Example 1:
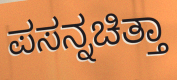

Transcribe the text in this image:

ಪಸನ್ನಚಿತ್ತಾ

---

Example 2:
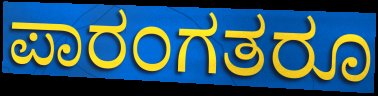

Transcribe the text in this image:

ಪಾರಂಗತರೂ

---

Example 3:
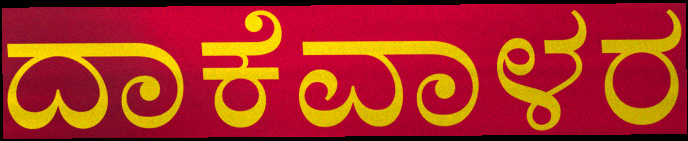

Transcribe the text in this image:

ದಾಕೆವಾಳರ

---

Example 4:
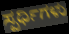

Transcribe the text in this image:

ಸ್ಪರ್ಧಿಗಳು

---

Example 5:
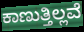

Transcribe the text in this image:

ಕಾಣುತ್ತಿಲ್ಲವೆ